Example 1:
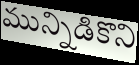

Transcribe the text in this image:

మున్నిడికొని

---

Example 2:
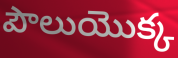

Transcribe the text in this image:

పౌలుయొక్క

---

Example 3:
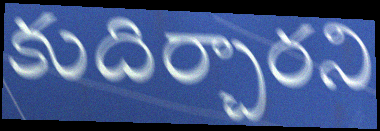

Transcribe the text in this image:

కుదిర్చారని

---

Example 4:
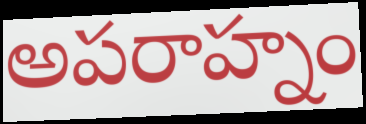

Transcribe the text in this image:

అపరాహ్నం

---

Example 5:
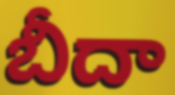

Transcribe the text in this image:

బీదా